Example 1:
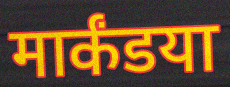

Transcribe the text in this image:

मार्कंडया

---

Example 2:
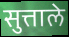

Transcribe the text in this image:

सुत्ताले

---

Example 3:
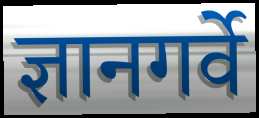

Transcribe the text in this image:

ज्ञानगर्वे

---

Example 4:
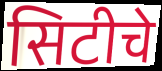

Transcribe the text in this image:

सिटीचे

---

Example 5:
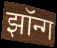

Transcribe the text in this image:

झॉन्ग